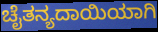
ಚೈತನ್ಯದಾಯಿಯಾಗಿ